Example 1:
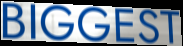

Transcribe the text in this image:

BIGGEST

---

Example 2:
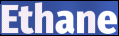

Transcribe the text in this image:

Ethane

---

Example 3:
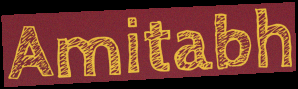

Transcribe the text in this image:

Amitabh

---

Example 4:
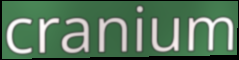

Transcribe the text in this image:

cranium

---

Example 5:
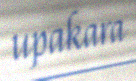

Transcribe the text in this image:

upakara